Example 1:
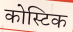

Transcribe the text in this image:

कोस्टिक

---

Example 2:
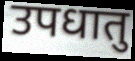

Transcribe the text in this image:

उपधातु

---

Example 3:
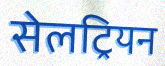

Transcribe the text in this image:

सेलट्रियन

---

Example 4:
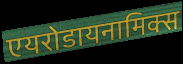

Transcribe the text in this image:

एयरोडायनामिक्स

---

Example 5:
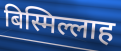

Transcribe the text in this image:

बिस्मिल्लाह